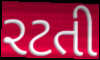
રટતી